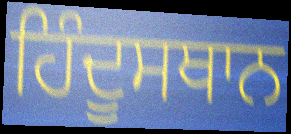
ਹਿੰਦੂਸਥਾਨ